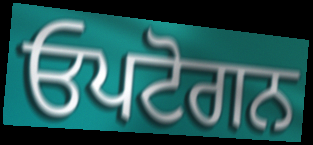
ਓਪਟੋਗਨ